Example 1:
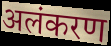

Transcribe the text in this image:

अलंकरण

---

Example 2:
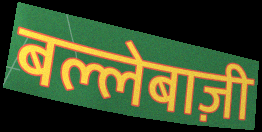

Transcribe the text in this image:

बल्लेबाज़ी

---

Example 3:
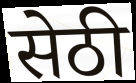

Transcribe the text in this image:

सेठी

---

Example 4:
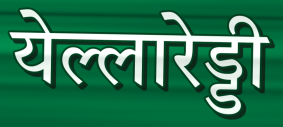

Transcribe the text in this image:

येल्लारेड्डी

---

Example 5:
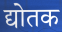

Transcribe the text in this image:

द्योतक